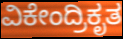
ವಿಕೇಂದ್ರಿಕೃತ